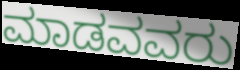
ಮಾಡವವರು